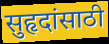
सुहृदांसाठी